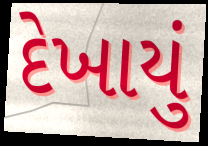
દેખાયું